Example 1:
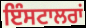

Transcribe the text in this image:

ਇੰਸਟਾਲਰਾਂ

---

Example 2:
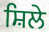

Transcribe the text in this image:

ਸ਼ਿਲੇ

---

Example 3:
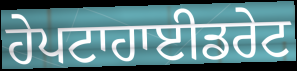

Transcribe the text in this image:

ਹੇਪਟਾਹਾਈਡਰੇਟ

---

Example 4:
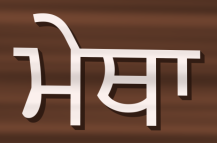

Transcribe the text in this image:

ਮੇਥਾ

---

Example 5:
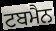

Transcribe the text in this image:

ਟਬਮੈਨ